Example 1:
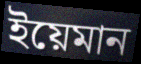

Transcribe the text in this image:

ইয়েমান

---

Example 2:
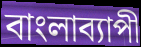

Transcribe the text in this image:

বাংলাব্যাপী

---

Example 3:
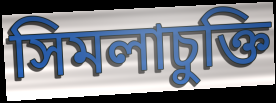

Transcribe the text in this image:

সিমলাচুক্তি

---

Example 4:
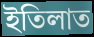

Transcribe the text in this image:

ইতিলাত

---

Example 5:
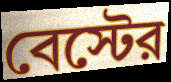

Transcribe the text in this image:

বেস্টের